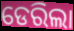
ଡେରିଲା